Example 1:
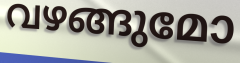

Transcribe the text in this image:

വഴങ്ങുമോ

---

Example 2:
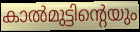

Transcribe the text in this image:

കാൽമുട്ടിന്റെയും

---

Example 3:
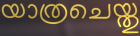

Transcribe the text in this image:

യാത്രചെയ്തു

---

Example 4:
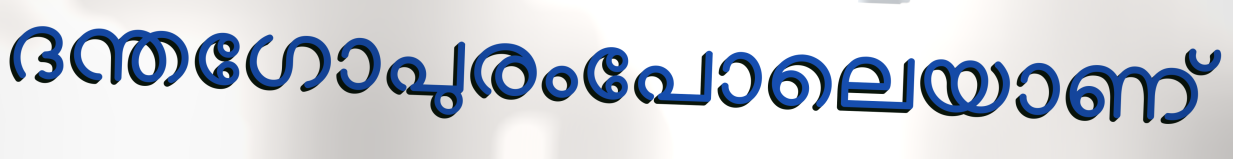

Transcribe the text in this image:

ദന്തഗോപുരംപോലെയാണ്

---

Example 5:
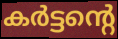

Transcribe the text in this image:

കർട്ടന്റെ